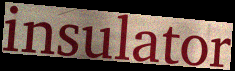
insulator